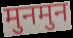
मुनमुन